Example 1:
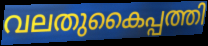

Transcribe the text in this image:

വലതുകൈപ്പത്തി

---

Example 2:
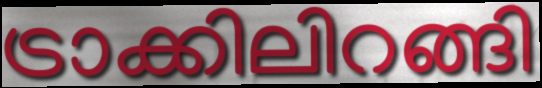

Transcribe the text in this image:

ട്രാക്കിലിറങ്ങി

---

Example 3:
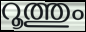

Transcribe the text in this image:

റൂത്തും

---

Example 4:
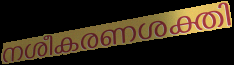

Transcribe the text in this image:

നശീകരണശക്തി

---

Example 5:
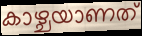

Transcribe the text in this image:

കാഴ്ചയാണത്